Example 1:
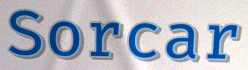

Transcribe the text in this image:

Sorcar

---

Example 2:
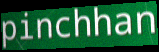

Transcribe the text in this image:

pinchhan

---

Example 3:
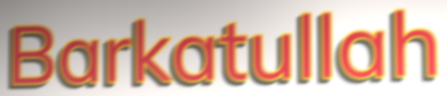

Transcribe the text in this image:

Barkatullah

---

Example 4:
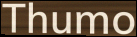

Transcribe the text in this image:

Thumo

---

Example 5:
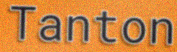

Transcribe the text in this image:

Tanton